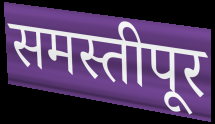
समस्तीपूर